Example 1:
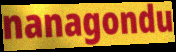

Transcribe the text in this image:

nanagondu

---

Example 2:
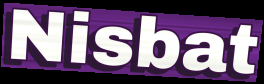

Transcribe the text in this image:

Nisbat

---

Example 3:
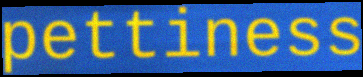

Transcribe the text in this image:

pettiness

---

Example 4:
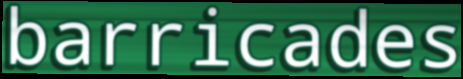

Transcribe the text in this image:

barricades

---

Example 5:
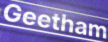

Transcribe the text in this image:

Geetham